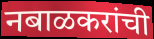
नबाळकरांची